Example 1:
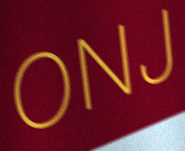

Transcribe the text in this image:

ONJ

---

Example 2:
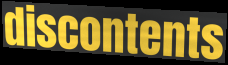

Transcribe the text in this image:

discontents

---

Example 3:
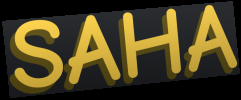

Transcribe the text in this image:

SAHA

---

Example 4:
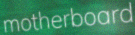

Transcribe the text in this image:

motherboard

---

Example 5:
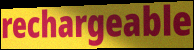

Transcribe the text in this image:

rechargeable